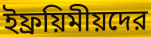
ইফ্রয়িমীয়দের